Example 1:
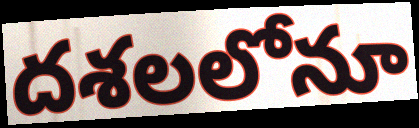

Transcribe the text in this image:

దశలలోనూ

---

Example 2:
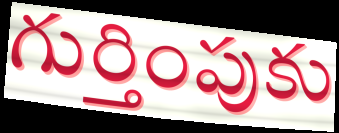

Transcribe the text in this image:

గుర్తింపుకు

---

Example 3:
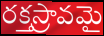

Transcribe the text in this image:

రక్తస్రావమై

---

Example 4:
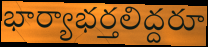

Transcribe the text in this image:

భార్యాభర్తలిద్దరూ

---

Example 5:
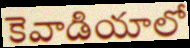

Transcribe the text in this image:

కెవాడియాలో